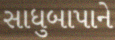
સાધુબાપાને